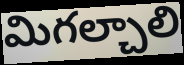
మిగల్చాలి